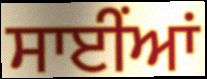
ਸਾਈਂਆਂ